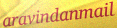
aravindanmail